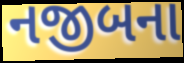
નજીબના